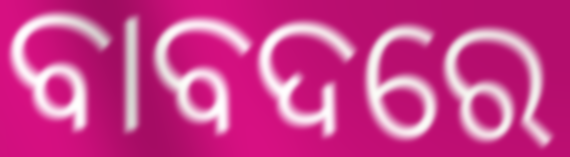
ବାବଦରେ